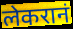
लेकरानं